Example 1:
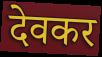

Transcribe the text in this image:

देवकर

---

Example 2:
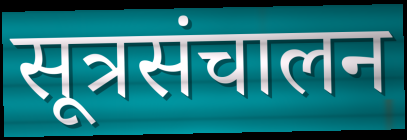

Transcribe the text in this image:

सूत्रसंचालन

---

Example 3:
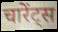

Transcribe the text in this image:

चारेंट्स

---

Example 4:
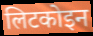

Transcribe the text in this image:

लिटकोइन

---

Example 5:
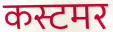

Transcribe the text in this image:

कस्टमर